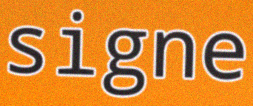
signe